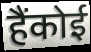
हैंकोई